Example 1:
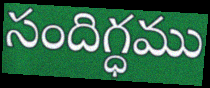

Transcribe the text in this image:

సందిగ్ధము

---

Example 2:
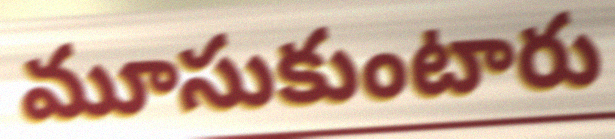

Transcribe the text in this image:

మూసుకుంటారు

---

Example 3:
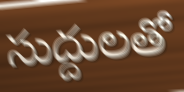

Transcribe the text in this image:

సుద్దులతో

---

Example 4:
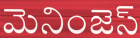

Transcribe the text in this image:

మెనింజెస్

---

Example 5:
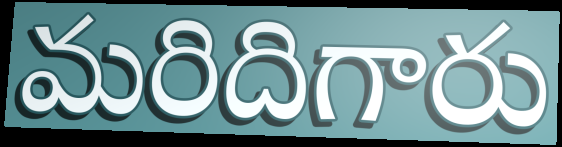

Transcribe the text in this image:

మరిదిగారు